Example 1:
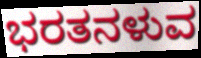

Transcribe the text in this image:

ಭರತನಳುವ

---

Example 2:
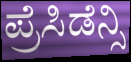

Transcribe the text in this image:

ಪ್ರೆಸಿಡೆನ್ಸಿ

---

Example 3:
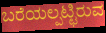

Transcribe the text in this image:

ಬರೆಯಲ್ಪಟ್ಟಿರುವ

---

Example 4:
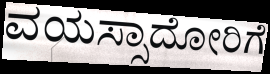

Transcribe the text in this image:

ವಯಸ್ಸಾದೋರಿಗೆ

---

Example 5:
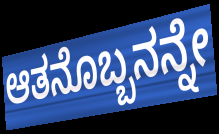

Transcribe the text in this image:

ಆತನೊಬ್ಬನನ್ನೇ